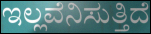
ಇಲ್ಲವೆನಿಸುತ್ತಿದೆ